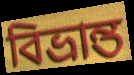
বিভ্ৰান্ত